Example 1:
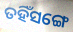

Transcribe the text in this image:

ତହିଁସଙ୍ଗେ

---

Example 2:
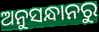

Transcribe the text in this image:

ଅନୁସନ୍ଧାନରୁ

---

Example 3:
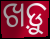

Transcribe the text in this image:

ଖଡ଼ୁ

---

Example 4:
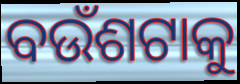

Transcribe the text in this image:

ବଉଁଶଟାକୁ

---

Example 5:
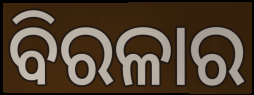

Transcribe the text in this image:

ବିରଳାର